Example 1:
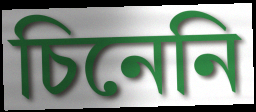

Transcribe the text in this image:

চিনেনি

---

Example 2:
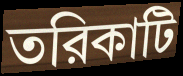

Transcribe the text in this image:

তরিকাটি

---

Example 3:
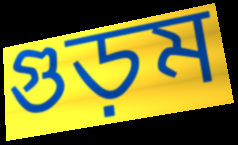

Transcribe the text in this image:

গুড়ম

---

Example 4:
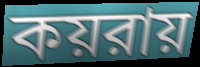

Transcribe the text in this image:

কয়রায়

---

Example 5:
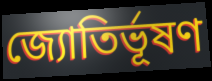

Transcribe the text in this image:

জ্যোতির্ভূষণ